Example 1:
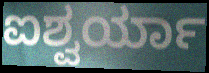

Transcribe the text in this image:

ಐಶ್ವರ್ಯಾ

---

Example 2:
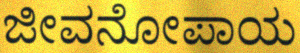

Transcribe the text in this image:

ಜೀವನೋಪಾಯ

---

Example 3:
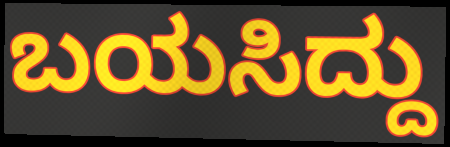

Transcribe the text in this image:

ಬಯಸಿದ್ದು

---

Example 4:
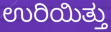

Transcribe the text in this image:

ಉರಿಯಿತ್ತು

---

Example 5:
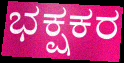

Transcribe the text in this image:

ಭಕ್ಷಕರ